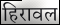
हिरावल